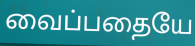
வைப்பதையே